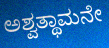
ಅಶ್ವತ್ಥಾಮನೇ